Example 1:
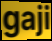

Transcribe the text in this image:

gaji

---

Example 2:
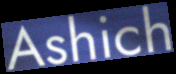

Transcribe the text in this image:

Ashich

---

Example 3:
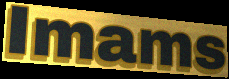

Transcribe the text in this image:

Imams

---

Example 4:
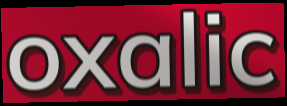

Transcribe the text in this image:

oxalic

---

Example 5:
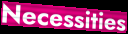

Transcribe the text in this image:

Necessities